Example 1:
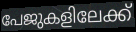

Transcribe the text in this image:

പേജുകളിലേക്ക്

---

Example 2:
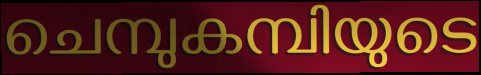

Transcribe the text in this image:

ചെമ്പുകമ്പിയുടെ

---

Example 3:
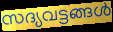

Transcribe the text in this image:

സദ്യവട്ടങ്ങൾ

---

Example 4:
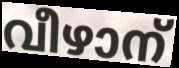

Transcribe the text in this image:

വീഴാന്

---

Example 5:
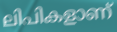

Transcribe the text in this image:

ലിപികളാണ്